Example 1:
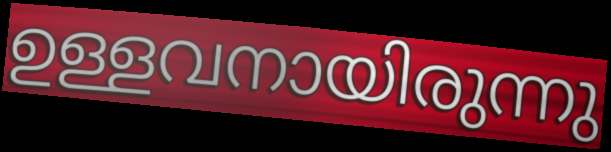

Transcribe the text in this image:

ഉള്ളവനായിരുന്നു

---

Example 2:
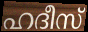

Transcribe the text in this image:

ഹദീസ്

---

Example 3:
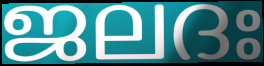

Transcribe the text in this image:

ജലദഃ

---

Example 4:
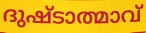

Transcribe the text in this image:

ദുഷ്ടാത്മാവ്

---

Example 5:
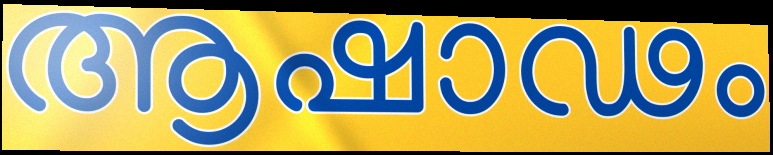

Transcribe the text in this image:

ആഷാഢം